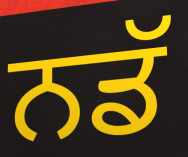
ਨਡੱ